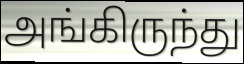
அங்கிருந்து